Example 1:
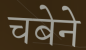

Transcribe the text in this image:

चबेने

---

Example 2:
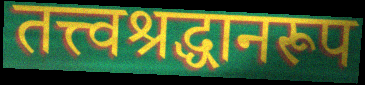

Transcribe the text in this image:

तत्त्वश्रद्धानरूप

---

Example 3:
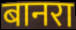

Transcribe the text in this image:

बानरा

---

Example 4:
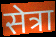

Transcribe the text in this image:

सेत्रा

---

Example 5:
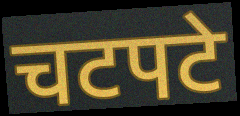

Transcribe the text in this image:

चटपटे